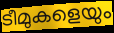
ടീമുകളെയും